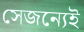
সেজন্যেই